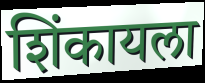
शिंकायला